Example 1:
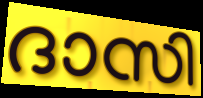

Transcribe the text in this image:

ദാസി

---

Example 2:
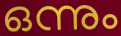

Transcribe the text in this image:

ഒന്നും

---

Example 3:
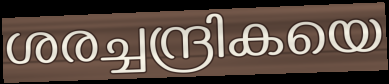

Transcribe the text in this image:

ശരച്ചന്ദ്രികയെ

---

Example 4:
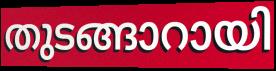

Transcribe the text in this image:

തുടങ്ങാറായി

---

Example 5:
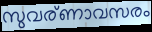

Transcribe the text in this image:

സുവര്ണാവസരം